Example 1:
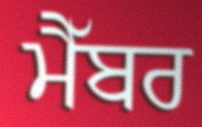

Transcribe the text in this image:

ਮੈੱਬਰ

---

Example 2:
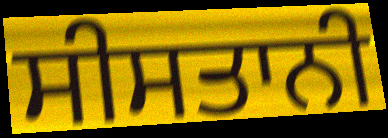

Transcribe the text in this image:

ਸੀਸਤਾਨੀ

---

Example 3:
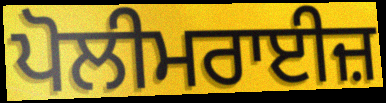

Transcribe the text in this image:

ਪੋਲੀਮਰਾਈਜ਼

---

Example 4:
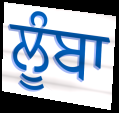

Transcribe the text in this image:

ਲੂੰਬਾ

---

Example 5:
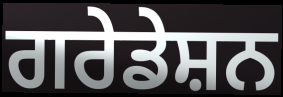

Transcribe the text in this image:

ਗਰੇਡੇਸ਼ਨ